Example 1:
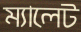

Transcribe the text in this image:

ম্যালেট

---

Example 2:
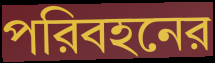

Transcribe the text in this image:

পরিবহনের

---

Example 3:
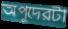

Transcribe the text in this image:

অপুদেরটা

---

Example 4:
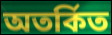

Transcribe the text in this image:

অতর্কিত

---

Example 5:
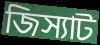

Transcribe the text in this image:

জিস্যাট